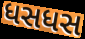
ધસધસ